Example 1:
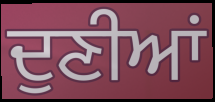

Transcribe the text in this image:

ਦੁਣੀਆਂ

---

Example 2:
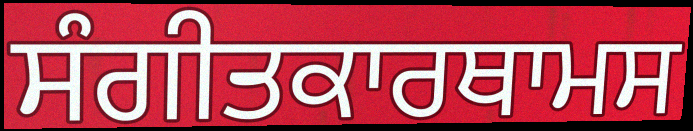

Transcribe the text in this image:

ਸੰਗੀਤਕਾਰਥਾਮਸ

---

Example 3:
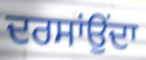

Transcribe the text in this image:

ਦਰਸਾਂਉਂਦਾ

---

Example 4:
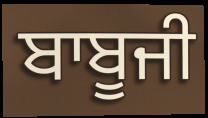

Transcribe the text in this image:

ਬਾਬੂਜੀ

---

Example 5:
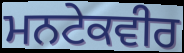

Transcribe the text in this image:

ਮਨਟੇਕਵੀਰ